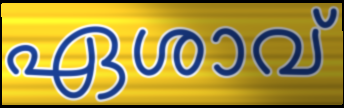
ഏശാവ്